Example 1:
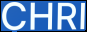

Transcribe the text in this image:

CHRI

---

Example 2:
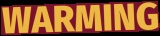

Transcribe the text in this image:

WARMING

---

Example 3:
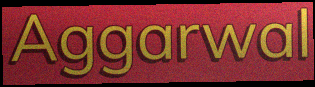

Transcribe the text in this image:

Aggarwal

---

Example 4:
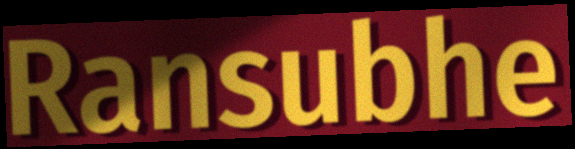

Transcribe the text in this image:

Ransubhe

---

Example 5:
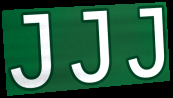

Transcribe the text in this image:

JJJ